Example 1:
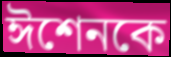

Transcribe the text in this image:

ঈশেনকে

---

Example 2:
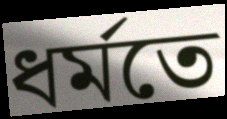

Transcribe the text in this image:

ধর্মতে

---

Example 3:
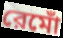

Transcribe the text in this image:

রেমোঁ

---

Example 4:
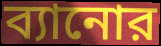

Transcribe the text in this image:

ব্যানোর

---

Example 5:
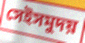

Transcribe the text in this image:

সেইসমুদয়